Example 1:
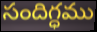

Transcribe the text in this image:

సందిగ్ధము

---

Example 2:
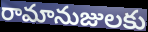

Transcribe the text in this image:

రామానుజులకు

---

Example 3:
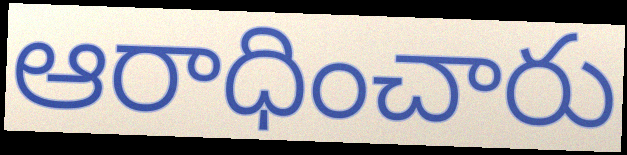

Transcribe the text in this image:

ఆరాధించారు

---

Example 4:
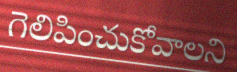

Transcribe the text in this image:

గెలిపించుకోవాలని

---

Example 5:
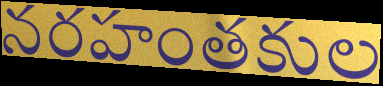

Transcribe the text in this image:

నరహంతకుల